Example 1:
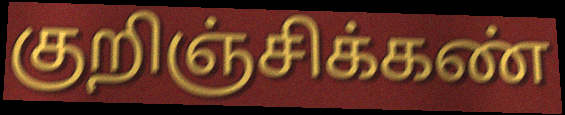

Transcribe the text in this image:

குறிஞ்சிக்கண்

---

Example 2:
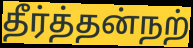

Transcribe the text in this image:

தீர்த்தன்நற்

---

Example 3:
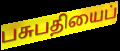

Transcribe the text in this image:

பசுபதியைப்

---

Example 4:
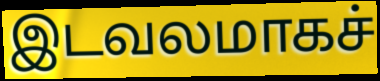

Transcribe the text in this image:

இடவலமாகச்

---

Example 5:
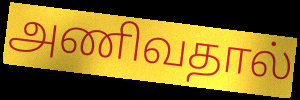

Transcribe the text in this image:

அணிவதால்